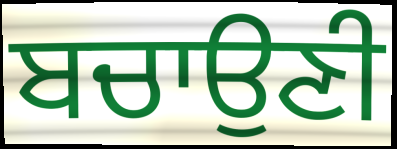
ਬਚਾਉਣੀ